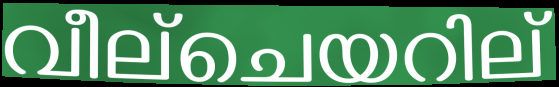
വീല്ചെയറില്